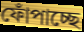
ফোঁপাচ্ছে